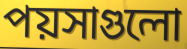
পয়সাগুলো